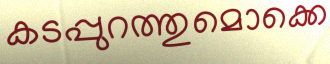
കടപ്പുറത്തുമൊക്കെ